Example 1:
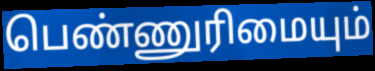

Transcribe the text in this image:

பெண்ணுரிமையும்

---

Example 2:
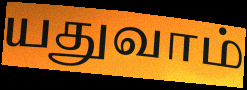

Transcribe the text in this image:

யதுவாம்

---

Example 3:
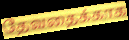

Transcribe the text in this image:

தேவதைக்காக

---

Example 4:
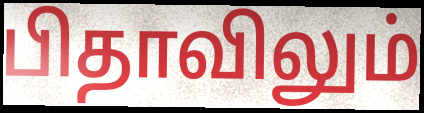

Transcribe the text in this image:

பிதாவிலும்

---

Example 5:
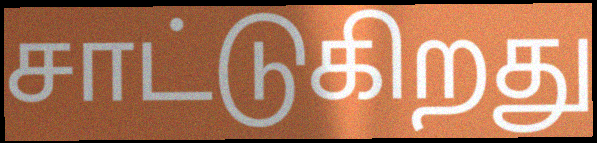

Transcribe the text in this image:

சாட்டுகிறது